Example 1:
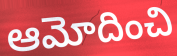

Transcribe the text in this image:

ఆమోదించి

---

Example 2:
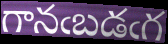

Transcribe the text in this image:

గానఁబడఁగ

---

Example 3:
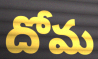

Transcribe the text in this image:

దోమ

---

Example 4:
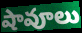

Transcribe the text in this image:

షావూలు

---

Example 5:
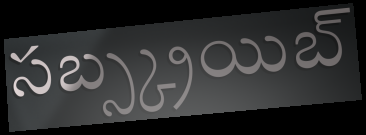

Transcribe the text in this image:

సబ్స్క్రయిబ్